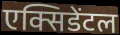
एक्सिडेंटल